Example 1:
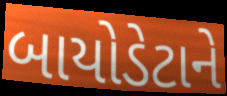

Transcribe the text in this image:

બાયોડેટાને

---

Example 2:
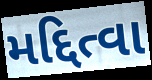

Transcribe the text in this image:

મદ્દિત્વા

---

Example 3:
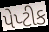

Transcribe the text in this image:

પેપ્ટીક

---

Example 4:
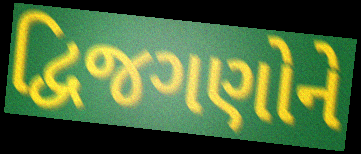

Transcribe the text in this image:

દ્વિજગણોને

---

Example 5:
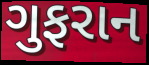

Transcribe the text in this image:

ગુફરાન